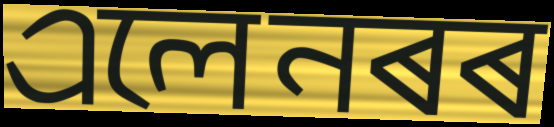
এলেনৰৰ